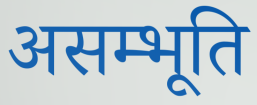
असम्भूति